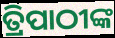
ତ୍ରିପାଠୀଙ୍କ